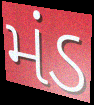
મંડ